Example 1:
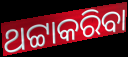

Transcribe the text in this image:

ଥଟ୍ଟାକରିବା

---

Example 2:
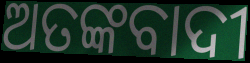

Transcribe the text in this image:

ଅତଙ୍କବାଦୀ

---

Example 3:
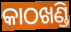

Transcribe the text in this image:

କାଠଖଣ୍ଡି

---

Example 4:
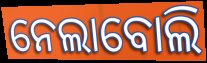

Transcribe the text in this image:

ନେଲାବୋଲି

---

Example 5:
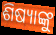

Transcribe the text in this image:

ଶିଷ୍ୟାଙ୍କୁ